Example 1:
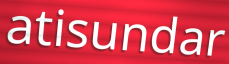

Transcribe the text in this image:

atisundar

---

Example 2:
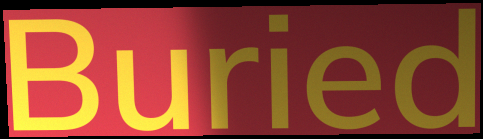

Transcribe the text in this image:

Buried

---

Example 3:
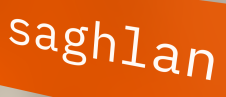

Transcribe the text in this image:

saghlan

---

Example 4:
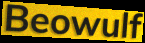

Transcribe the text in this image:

Beowulf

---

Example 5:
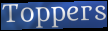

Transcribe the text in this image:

Toppers